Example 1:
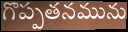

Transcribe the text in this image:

గొప్పతనమును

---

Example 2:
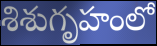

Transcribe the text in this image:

శిశుగృహంలో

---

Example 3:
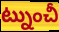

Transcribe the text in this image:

ట్నుంచీ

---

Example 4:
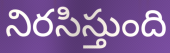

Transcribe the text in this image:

నిరసిస్తుంది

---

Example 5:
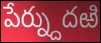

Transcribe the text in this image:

పేర్న్దుదఱి